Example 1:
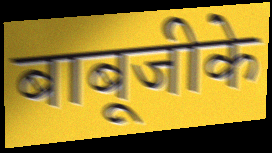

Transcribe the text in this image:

बाबूजीके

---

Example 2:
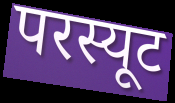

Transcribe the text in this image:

परस्यूट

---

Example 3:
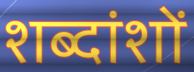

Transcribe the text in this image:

शब्दांशों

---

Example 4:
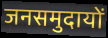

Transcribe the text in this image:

जनसमुदायों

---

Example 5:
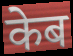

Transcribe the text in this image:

केब